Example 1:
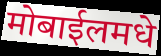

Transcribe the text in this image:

मोबाईलमधे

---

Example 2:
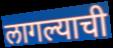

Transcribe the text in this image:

लागल्याची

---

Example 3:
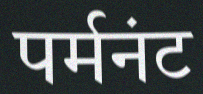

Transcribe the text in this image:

पर्मनंट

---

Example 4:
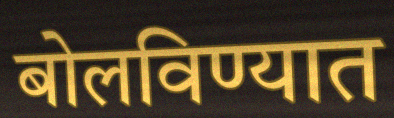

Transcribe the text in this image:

बोलविण्यात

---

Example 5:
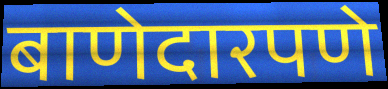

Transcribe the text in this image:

बाणेदारपणे